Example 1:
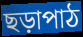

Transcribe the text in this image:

ছড়াপাঠ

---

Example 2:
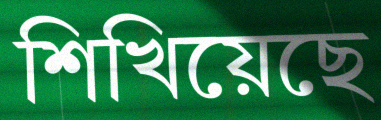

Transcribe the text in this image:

শিখিয়েছে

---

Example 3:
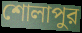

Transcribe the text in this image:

শোলাপুর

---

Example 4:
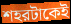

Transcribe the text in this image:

শহরটাকেই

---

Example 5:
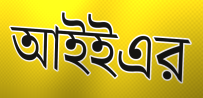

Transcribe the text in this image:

আইইএর